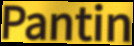
Pantin